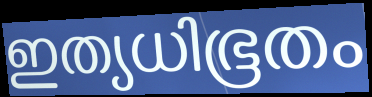
ഇത്യധിഭൂതം